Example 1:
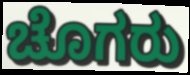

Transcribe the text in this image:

ಚೊಗರು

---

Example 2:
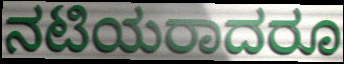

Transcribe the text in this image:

ನಟಿಯರಾದರೂ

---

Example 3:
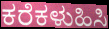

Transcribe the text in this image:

ಕರೆಕಳುಹಿಸಿ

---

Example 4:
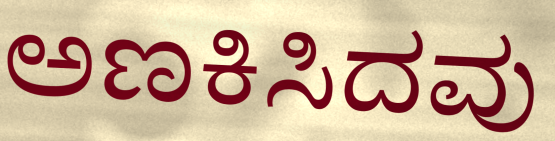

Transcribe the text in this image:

ಅಣಕಿಸಿದವು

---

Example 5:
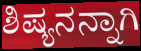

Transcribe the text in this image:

ಶಿಷ್ಯನನ್ನಾಗಿ